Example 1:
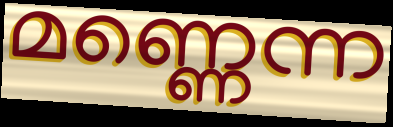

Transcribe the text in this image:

മണ്ണെന്ന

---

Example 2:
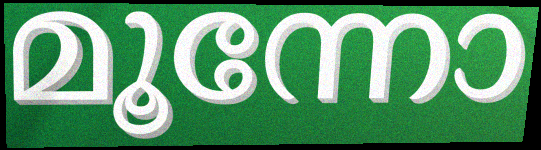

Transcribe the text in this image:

മൂന്നോ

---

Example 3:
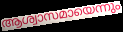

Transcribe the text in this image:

ആശ്വാസമായെന്നും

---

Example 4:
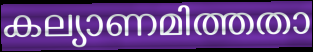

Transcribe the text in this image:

കല്യാണമിത്തതാ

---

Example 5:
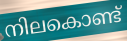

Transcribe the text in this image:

നിലകൊണ്ട്